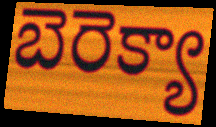
బెరెక్యా